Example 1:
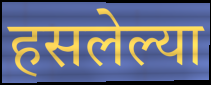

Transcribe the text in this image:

हसलेल्या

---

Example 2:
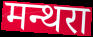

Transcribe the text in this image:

मन्थरा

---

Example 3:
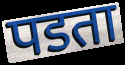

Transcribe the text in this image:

पडता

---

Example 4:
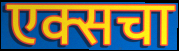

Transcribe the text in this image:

एक्सचा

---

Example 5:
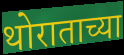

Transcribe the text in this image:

थोराताच्या